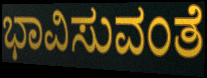
ಭಾವಿಸುವಂತೆ